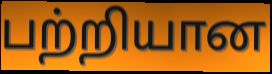
பற்றியான